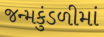
જન્મકુંડળીમાં